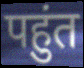
पहुंत